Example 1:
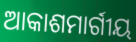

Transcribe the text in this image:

ଆକାଶମାର୍ଗୀୟ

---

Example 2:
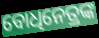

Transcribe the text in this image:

ବୋଧିନେତ୍ରଙ୍କ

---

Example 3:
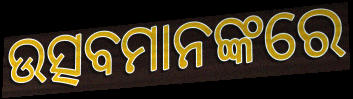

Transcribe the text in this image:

ଉତ୍ସବମାନଙ୍କରେ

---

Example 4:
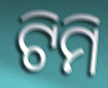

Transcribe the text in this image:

ଟିମି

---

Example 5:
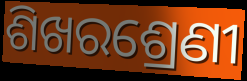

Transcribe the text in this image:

ଶିଖରଶ୍ରେଣୀ